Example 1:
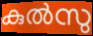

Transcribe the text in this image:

കുൽസു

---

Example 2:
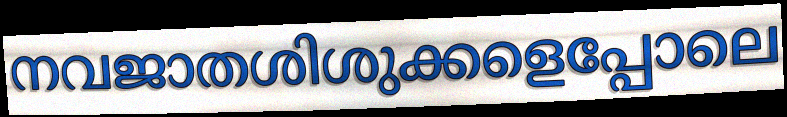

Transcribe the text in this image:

നവജാതശിശുക്കളെപ്പോലെ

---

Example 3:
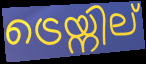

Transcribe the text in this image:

ട്രെയ്നില്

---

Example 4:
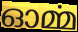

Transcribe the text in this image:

ഓൎമ്മ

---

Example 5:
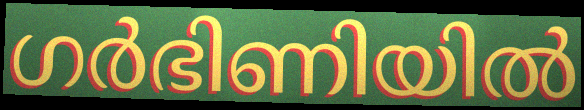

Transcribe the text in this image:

ഗർഭിണിയിൽ